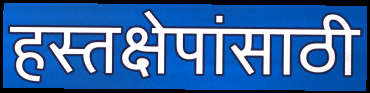
हस्तक्षेपांसाठी